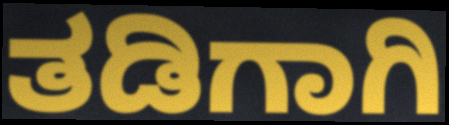
ತಡಿಗಾಗಿ